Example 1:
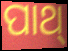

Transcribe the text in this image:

ପାଥ୍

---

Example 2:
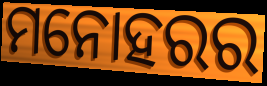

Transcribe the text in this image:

ମନୋହରର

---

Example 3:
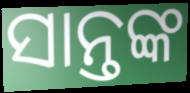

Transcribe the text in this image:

ସାନ୍ତଙ୍କ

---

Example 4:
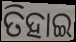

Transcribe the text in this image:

ତିହାଇ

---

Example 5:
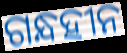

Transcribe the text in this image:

ଗନ୍ଧହୀନ